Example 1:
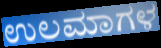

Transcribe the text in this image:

ಉಲಮಾಗಳ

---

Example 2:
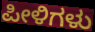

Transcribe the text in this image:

ಪೀಳಿಗಳು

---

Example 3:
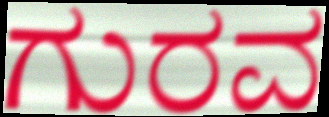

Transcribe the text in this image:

ಗುರವ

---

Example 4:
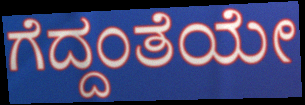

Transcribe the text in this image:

ಗೆದ್ದಂತೆಯೇ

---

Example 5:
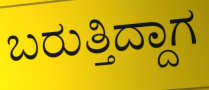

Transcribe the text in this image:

ಬರುತ್ತಿದ್ದಾಗ